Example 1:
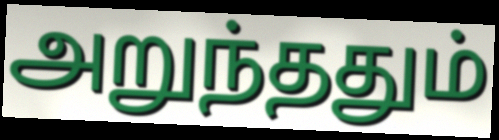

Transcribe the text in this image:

அறுந்ததும்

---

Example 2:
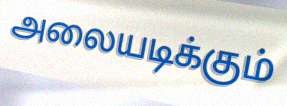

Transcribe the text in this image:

அலையடிக்கும்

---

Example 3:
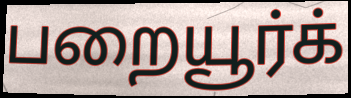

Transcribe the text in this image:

பறையூர்க்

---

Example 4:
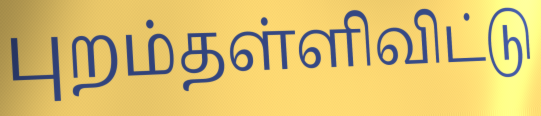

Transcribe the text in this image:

புறம்தள்ளிவிட்டு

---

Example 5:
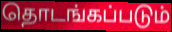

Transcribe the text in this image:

தொடங்கப்படும்